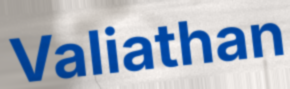
Valiathan